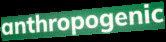
anthropogenic